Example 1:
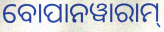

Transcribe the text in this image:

ବୋପାନୱାରାମ୍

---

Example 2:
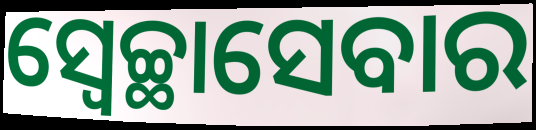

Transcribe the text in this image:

ସ୍ୱେଚ୍ଛାସେବାର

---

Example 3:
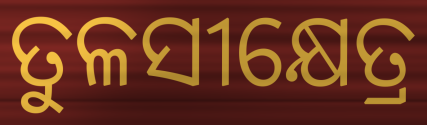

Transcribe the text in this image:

ତୁଳସୀକ୍ଷେତ୍ର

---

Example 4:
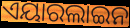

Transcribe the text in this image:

ଏୟାରଲାଇନ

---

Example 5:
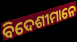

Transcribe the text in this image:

ବିଦେଶୀମାନେ